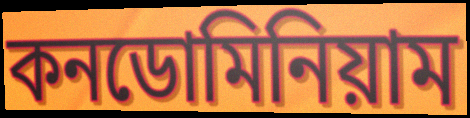
কনডোমিনিয়াম